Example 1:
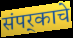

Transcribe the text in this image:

संपर्काचे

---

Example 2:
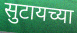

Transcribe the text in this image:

सुटायच्या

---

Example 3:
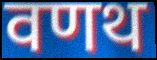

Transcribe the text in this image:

वणथ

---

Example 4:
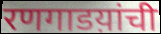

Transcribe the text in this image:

रणगाडय़ांची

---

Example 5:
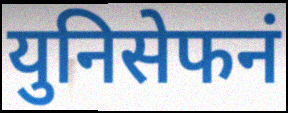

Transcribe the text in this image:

युनिसेफनं